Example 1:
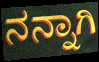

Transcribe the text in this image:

ನನ್ನಾಗಿ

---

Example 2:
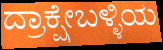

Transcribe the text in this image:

ದ್ರಾಕ್ಷೇಬಳ್ಳಿಯ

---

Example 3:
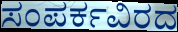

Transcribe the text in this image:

ಸಂಪರ್ಕವಿರದ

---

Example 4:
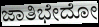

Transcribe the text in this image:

ಜಾತಿಭೇದೋ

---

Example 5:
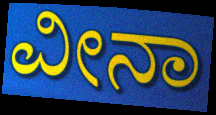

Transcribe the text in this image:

ವೀನಾ